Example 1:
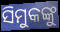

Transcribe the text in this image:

ସିମୁକଙ୍କୁ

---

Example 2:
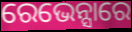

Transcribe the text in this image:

ରେଭେନ୍ସାରେ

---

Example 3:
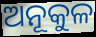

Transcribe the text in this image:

ଅନୂକୁଳ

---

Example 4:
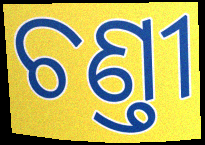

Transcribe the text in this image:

ଚଣ୍ତୀ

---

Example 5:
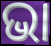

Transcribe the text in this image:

ଭା